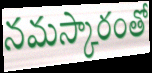
నమస్కారంతో